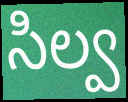
సిల్వ